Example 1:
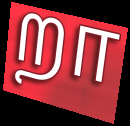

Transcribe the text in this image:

றா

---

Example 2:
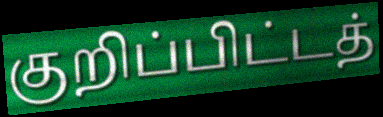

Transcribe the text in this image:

குறிப்பிட்டத்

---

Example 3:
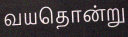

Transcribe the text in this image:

வயதொன்று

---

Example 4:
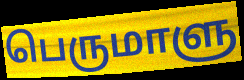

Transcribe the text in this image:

பெருமாளு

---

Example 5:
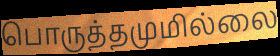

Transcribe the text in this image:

பொருத்தமுமில்லை